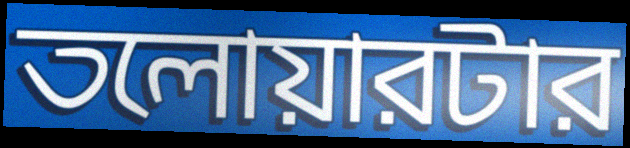
তলোয়ারটার